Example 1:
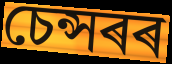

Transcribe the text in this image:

চেন্সৰৰ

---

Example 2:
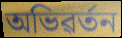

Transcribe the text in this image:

অভিৱৰ্তন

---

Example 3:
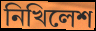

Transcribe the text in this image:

নিখিলেশ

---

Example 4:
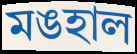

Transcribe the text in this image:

মঙহাল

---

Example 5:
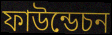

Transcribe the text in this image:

ফাউন্ডেচন